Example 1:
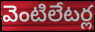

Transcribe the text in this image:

వెంటిలేటర్ల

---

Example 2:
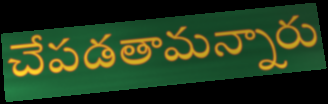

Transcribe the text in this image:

చేపడతామన్నారు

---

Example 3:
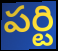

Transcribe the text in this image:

పర్టి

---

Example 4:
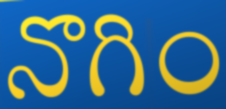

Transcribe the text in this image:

నొగిం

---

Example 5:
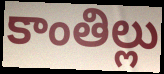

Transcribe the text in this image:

కాంతిల్లు